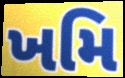
ખમિ